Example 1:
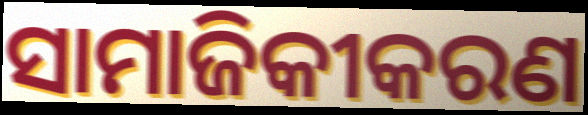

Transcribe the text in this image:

ସାମାଜିକୀକରଣ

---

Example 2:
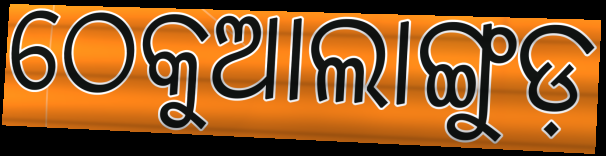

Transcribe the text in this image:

ଠେକୁଆଲାଙ୍ଗୁଡ଼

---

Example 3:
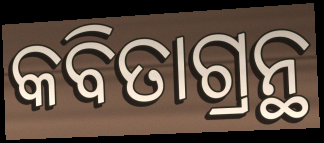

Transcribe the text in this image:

କବିତାଗ୍ରନ୍ଥ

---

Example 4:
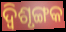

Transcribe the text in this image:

ଦ୍ବିଶୃଙ୍ଗକ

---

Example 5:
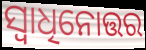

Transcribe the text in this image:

ସ୍ୱାଧିନୋତ୍ତର